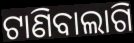
ଟାଣିବାଲାଗି